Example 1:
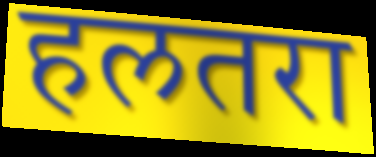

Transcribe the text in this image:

हलतरा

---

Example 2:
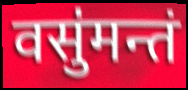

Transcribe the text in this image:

वसु॑मन्तं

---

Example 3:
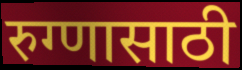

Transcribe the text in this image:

रुग्णासाठी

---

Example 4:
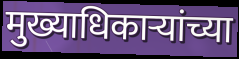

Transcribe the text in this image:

मुख्याधिकाऱ्यांच्या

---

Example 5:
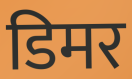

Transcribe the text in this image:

डिमर